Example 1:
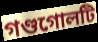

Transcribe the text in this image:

গণ্ডগোলটি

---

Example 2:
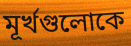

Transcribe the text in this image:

মূর্খগুলোকে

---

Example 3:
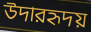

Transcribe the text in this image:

উদারহৃদয়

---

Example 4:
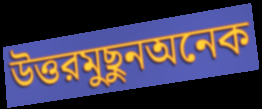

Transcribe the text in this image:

উত্তরমুছুনঅনেক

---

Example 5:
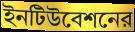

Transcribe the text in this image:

ইনটিউবেশনের